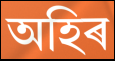
অহিৰ